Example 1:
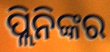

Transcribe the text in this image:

ପ୍ଲିନିଙ୍କର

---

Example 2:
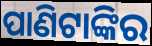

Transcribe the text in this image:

ପାଣିଟାଙ୍କିର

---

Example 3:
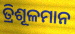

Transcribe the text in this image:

ତ୍ରିଶୂଳମାନ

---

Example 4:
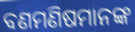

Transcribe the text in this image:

ବଣମଣିଷମାନଙ୍କ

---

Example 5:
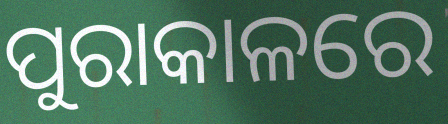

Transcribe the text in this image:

ପୁରାକାଳରେ